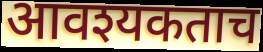
आवश्यकताच